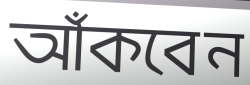
আঁকবেন